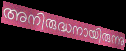
അനിരുദ്ധനായിരുന്നു